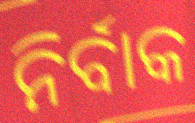
ନିର୍ବାକ